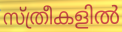
സ്ത്രീകളിൽ